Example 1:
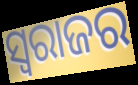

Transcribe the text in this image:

ସ୍ୱରାଜର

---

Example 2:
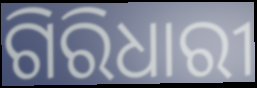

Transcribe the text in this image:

ଗିରିଧାରୀ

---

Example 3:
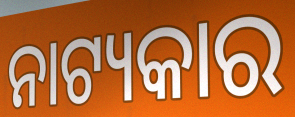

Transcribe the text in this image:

ନାଟ୍ୟକାର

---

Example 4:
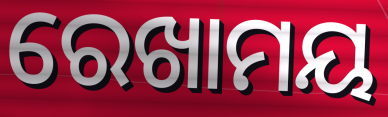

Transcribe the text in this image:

ରେଖାମୟ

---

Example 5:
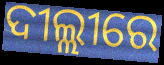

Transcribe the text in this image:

ଦୀଲ୍ଲୀରେ